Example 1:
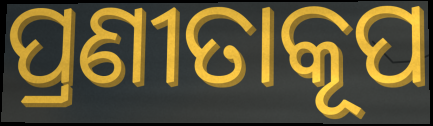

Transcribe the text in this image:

ପ୍ରଣୀତାକୂପ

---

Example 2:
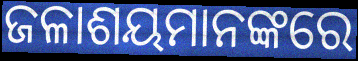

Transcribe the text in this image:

ଜଳାଶୟମାନଙ୍କରେ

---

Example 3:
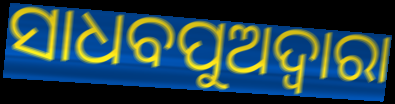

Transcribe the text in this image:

ସାଧବପୁଅଦ୍ୱାରା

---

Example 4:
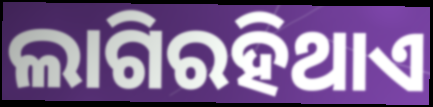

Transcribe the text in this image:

ଲାଗିରହିଥାଏ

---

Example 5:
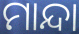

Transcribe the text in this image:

ମାନ୍ଦା